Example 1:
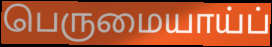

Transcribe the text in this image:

பெருமையாய்ப்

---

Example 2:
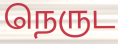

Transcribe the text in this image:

நெருட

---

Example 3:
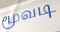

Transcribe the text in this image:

மூவடி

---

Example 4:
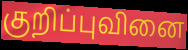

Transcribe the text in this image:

குறிப்புவினை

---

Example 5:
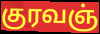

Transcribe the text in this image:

குரவஞ்